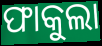
ଫାକୁଲା